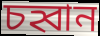
চহ্বান